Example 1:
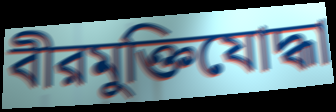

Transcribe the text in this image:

বীরমুক্তিযোদ্ধা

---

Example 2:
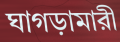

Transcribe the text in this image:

ঘাগড়ামারী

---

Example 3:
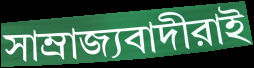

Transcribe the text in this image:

সাম্রাজ্যবাদীরাই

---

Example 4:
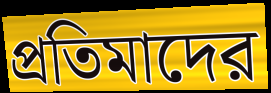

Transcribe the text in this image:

প্রতিমাদের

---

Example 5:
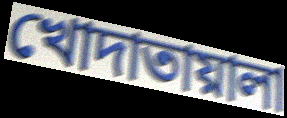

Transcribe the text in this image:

খোদাতায়ালা